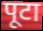
पूटा